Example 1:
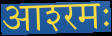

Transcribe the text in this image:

आश्रमः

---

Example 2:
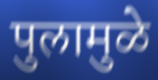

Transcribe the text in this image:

पुलामुळे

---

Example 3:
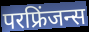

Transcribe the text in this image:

परफ्रिंजन्स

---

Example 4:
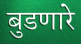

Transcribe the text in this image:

बुडणारे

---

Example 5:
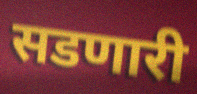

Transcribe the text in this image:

सडणारी